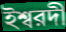
ইশ্বরদী